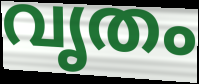
വൃതം